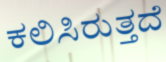
ಕಲಿಸಿರುತ್ತದೆ